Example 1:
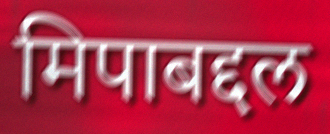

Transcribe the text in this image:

मिपाबद्दल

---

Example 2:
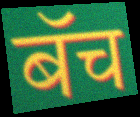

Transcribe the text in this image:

बॅच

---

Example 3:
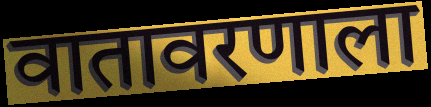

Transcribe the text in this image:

वातावरणाला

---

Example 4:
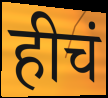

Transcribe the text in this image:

हीचं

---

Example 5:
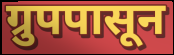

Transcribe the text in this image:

ग्रुपपासून